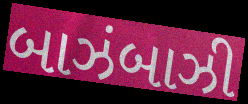
બાઝંબાઝી